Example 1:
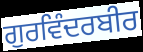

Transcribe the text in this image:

ਗੁਰਵਿੰਦਰਬੀਰ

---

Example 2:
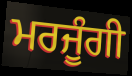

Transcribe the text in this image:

ਮਰਜੂੰਗੀ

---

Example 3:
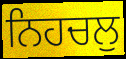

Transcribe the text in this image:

ਨਿਹਚਲੁ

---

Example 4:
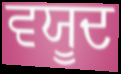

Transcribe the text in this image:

ਵਯੂਦ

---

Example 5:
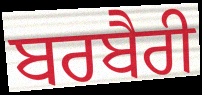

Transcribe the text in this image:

ਬਰਬੈਰੀ